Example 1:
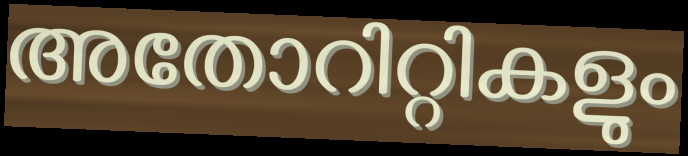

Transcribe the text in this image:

അതോറിറ്റികളും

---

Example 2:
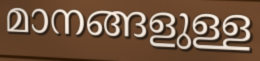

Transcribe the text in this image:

മാനങ്ങളുള്ള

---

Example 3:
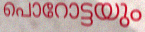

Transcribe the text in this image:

പൊറോട്ടയും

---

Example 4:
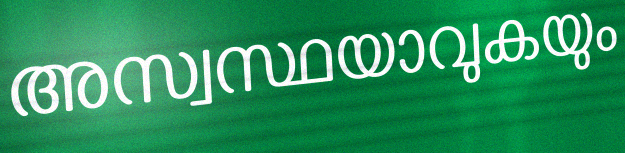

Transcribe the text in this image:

അസ്വസ്ഥയാവുകയും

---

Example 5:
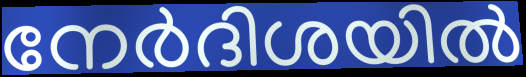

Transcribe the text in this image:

നേർദിശയിൽ